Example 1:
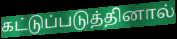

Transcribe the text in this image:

கட்டுப்படுத்தினால்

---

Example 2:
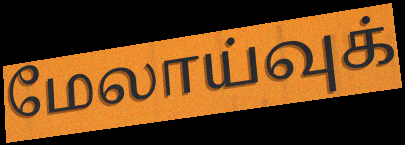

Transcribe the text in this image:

மேலாய்வுக்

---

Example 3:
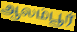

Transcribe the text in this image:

ஆலம்பூர்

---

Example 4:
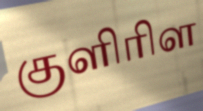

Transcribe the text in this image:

குளிரிள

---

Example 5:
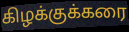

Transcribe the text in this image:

கிழக்குக்கரை